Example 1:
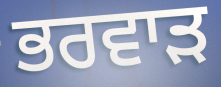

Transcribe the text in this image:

ਭਰਵਾੜ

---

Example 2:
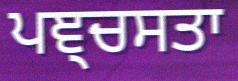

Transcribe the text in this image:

ਪਞ੍ਚਸਤਾ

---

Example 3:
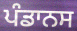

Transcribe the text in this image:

ਪੰਡਾਨਸ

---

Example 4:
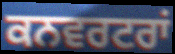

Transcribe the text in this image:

ਕਨਵਰਟਰਾਂ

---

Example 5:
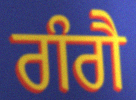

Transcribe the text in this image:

ਗੰਗੈ